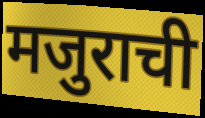
मजुराची